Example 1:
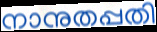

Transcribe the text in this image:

നാനുതപ്പതി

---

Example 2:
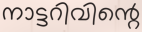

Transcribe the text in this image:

നാട്ടറിവിന്റെ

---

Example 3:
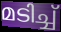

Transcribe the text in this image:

മടിച്ച്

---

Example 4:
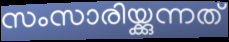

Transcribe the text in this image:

സംസാരിയ്ക്കുന്നത്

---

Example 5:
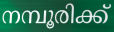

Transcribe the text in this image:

നമ്പൂരിക്ക്